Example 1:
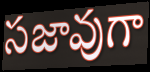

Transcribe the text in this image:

సజావుగా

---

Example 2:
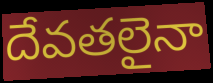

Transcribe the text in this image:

దేవతలైనా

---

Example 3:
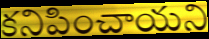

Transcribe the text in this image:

కనిపించాయని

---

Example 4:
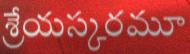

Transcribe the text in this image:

శ్రేయస్కరమూ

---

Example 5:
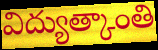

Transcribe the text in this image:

విద్యుత్కాంతి